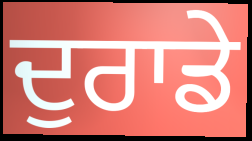
ਦੁਰਾਡੇ